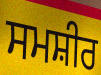
ਸਮਸ਼ੀਰ